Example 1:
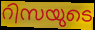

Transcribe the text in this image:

റിസയുടെ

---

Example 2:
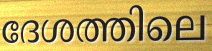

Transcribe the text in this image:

ദേശത്തിലെ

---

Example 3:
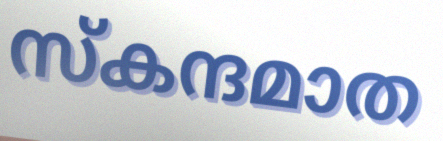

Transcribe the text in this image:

സ്കന്ദമാത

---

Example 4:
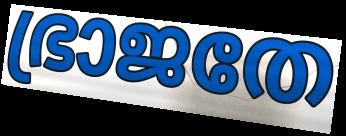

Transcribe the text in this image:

ഭ്രാജതേ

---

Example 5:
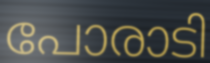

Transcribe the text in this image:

പോരാടി